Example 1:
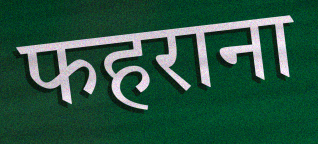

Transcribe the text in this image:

फहराना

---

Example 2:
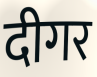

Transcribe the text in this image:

दीगर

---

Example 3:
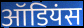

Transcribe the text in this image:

ऑडियंस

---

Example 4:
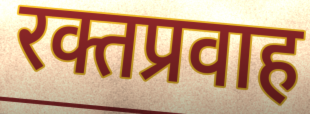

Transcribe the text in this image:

रक्तप्रवाह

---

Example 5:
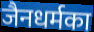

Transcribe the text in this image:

जैनधर्मका